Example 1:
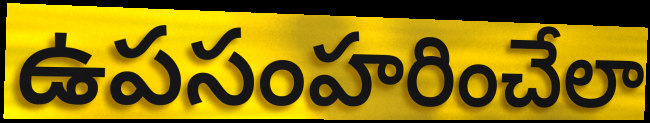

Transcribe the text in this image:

ఉపసంహరించేలా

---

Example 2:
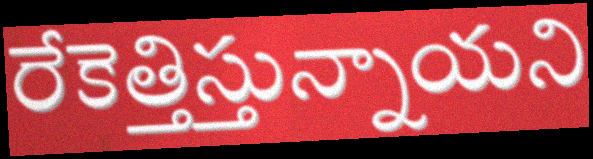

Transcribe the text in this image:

రేకెత్తిస్తున్నాయని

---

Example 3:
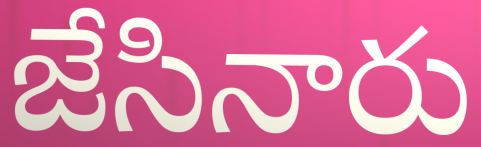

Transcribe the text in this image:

జేసినారు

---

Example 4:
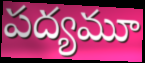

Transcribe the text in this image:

పద్యమూ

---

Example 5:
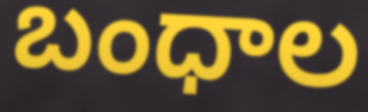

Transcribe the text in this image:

బంధాల